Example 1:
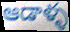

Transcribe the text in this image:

ఆడాళ్ళ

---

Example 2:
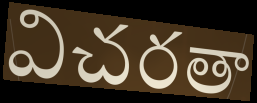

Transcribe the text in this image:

విచరతా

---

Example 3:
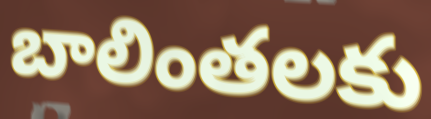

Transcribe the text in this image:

బాలింతలకు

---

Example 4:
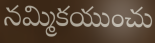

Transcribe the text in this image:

నమ్మికయుంచు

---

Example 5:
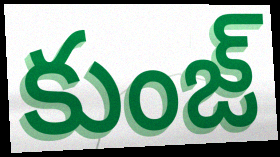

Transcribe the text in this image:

కుంజ్